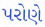
પરોણે